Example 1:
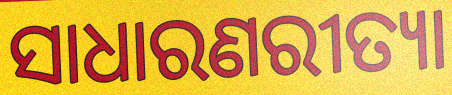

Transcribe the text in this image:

ସାଧାରଣରୀତ୍ୟା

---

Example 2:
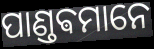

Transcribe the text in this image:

ପାଣ୍ଡଵମାନେ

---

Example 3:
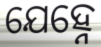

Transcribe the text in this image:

ଯେହ୍ନେ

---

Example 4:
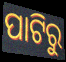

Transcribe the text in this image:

ପାଟିରୁ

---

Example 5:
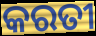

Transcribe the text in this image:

କରତୀ